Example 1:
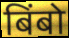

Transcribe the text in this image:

बिंबो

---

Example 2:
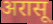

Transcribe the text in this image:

अरासू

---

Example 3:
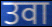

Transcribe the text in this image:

उवा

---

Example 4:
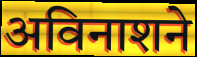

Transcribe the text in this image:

अविनाशने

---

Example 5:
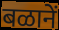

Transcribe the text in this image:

बळानें